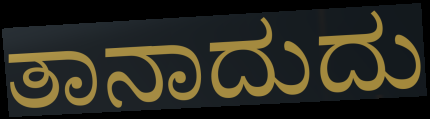
ತಾನಾದುದು